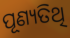
ପୂଣ୍ୟତିଥି